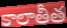
కాలాతీత